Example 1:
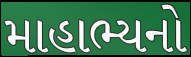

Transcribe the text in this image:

માહાભ્યનો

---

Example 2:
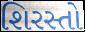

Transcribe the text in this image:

શિરસ્તો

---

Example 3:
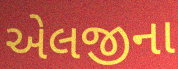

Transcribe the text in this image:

એલજીના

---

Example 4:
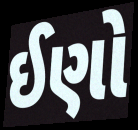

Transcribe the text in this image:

ઈણો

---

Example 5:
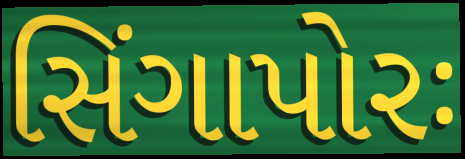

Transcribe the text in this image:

સિંગાપોરઃ